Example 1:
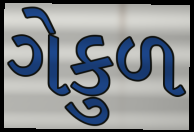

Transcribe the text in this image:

ગેકુળ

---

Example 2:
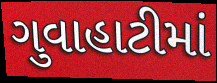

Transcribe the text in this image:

ગુવાહાટીમાં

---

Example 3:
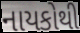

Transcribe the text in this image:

નાયકોથી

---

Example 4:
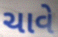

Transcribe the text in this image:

ચાવે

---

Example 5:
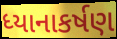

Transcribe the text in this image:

ધ્યાનાકર્ષણ